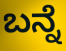
ಬನ್ನೆ